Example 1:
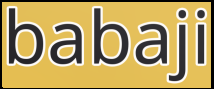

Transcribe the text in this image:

babaji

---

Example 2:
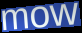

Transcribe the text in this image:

mow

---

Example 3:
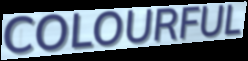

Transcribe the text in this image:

COLOURFUL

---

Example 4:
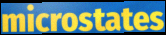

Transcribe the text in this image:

microstates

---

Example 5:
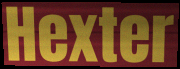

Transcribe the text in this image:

Hexter